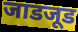
जाडजूड